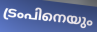
ട്രംപിനെയും